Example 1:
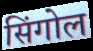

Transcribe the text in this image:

सिंगोल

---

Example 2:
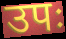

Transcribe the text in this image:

उपः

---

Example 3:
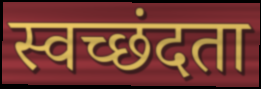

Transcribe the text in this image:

स्वच्छंदता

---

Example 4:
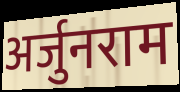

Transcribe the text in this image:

अर्जुनराम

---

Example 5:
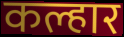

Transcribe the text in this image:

कल्हार